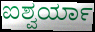
ಐಶ್ವರ್ಯಾ